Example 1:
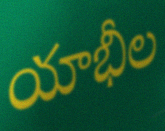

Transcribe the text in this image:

యాభీల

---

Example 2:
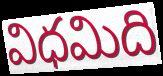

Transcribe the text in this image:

విధమిది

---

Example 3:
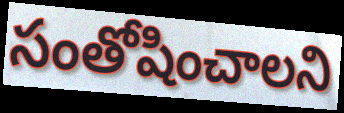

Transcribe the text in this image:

సంతోషించాలని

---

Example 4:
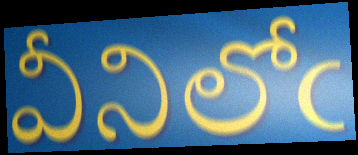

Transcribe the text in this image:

వీనిలోఁ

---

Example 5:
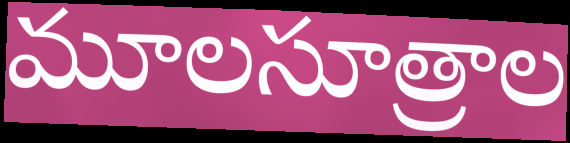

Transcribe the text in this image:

మూలసూత్రాల